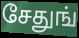
சேதுங்